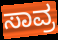
ಸಾವ್ರ